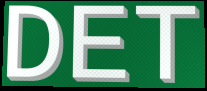
DET